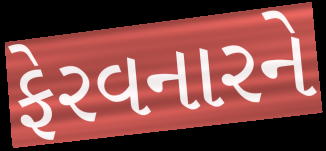
ફેરવનારને